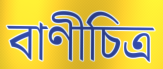
বাণীচিত্র